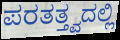
ಪರತತ್ತ್ವದಲ್ಲಿ